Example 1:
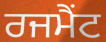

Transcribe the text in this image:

ਰਜਮੈਂਟ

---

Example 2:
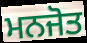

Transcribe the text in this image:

ਮਨਜੋਤ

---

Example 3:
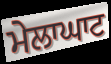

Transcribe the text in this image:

ਮੇਲਾਘਾਟ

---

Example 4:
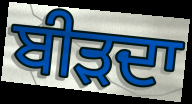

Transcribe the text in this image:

ਬੀੜਦਾ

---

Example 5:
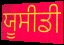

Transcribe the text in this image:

ਯੂਸੀਡੀ